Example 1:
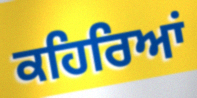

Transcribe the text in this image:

ਕਹਿਰਿਆਂ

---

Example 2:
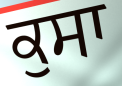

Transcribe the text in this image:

ਕੁਸਾ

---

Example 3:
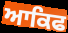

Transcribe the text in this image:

ਆਕਿਫ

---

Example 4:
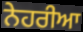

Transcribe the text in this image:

ਨੇਹਰੀਆ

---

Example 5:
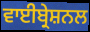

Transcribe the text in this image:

ਵਾਈਬ੍ਰੇਸ਼ਨਲ